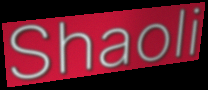
Shaoli